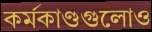
কর্মকাণ্ডগুলোও